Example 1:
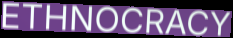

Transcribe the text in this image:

ETHNOCRACY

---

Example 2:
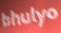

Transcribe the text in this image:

bhulyo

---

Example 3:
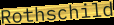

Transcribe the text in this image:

Rothschild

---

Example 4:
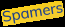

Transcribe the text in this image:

Spamers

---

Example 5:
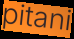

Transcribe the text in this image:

pitani